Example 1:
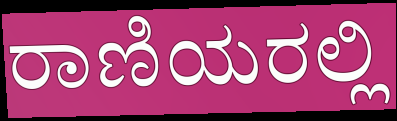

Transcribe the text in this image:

ರಾಣಿಯರಲ್ಲಿ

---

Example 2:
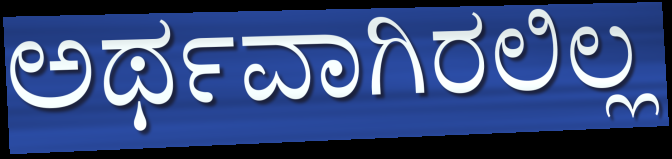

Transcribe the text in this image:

ಅರ್ಥವಾಗಿರಲಿಲ್ಲ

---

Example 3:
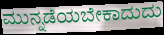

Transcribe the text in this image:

ಮುನ್ನಡೆಯಬೇಕಾದುದು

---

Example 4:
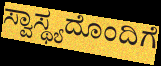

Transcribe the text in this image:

ಸ್ವಾಸ್ಥ್ಯದೊಂದಿಗೆ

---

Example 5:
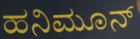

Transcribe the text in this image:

ಹನಿಮೂನ್